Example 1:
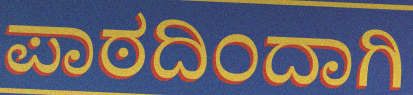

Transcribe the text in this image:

ಪಾಠದಿಂದಾಗಿ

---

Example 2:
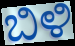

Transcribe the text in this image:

ಬಿಳಿ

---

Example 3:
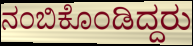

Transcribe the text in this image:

ನಂಬಿಕೊಂಡಿದ್ದರು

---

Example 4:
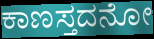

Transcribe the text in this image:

ಕಾಣಸ್ತದನೋ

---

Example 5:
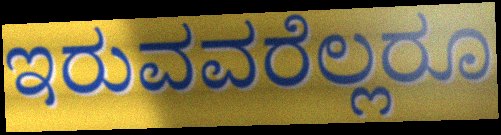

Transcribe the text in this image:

ಇರುವವರೆಲ್ಲರೂ